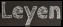
Leyen